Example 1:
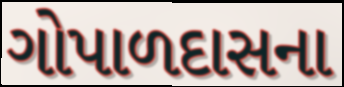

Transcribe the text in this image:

ગોપાળદાસના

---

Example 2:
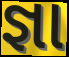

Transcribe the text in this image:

જ્ઞા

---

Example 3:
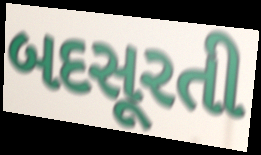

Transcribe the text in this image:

બદસૂરતી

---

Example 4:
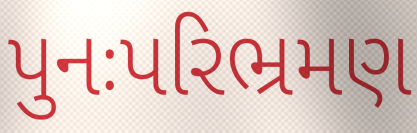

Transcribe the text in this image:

પુનઃપરિભ્રમણ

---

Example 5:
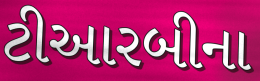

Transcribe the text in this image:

ટીઆરબીના